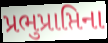
પ્રભુપ્રાપ્તિના